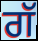
ਗੱ